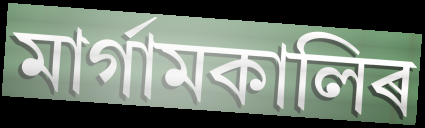
মাৰ্গামকালিৰ